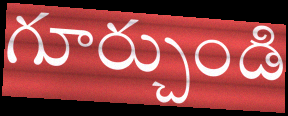
గూర్చుండి